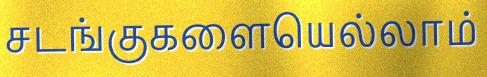
சடங்குகளையெல்லாம்